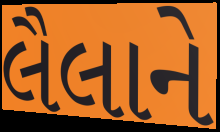
લૈલાને